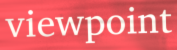
viewpoint